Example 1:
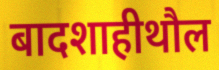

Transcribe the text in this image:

बादशाहीथौल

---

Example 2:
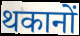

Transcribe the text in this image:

थकानों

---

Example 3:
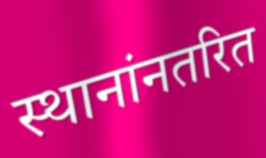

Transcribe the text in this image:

स्थानांनतरित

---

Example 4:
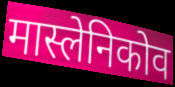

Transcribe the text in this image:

मास्लेनिकोव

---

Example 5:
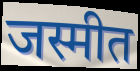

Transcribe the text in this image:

जस्मीत